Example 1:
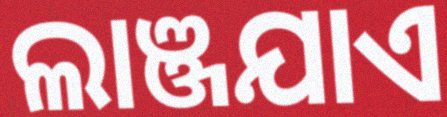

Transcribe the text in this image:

ଲାଞ୍ଜଯାଏ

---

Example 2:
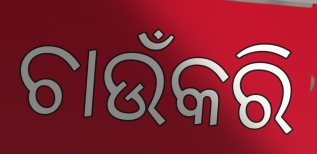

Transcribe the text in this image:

ଚାଉଁକରି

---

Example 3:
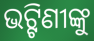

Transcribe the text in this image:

ଭଟ୍ଟିଣୀଙ୍କୁ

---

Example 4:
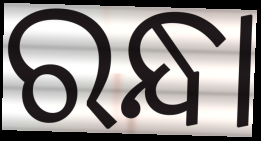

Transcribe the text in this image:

ରନ୍ଧା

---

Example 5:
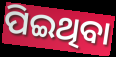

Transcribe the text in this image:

ପିଇଥିବା